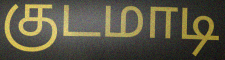
குடமாடி